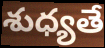
శుధ్యతే